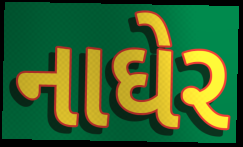
નાઘેર